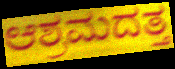
ಆಶ್ರಮದತ್ತ